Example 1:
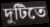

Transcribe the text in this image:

দুটিতে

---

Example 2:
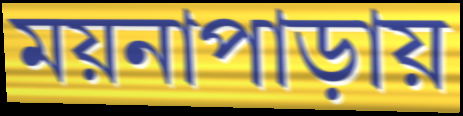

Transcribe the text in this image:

ময়নাপাড়ায়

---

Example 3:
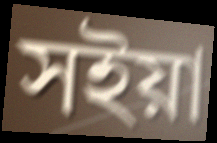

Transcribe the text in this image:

সইয়া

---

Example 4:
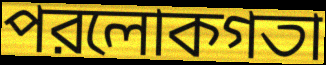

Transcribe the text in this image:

পরলোকগতা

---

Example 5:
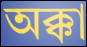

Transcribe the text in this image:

অক্কা